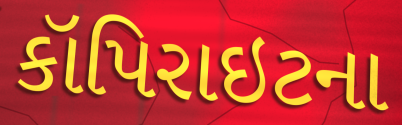
કૉપિરાઇટના